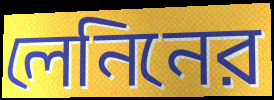
লেনিনের